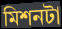
মিশনটা